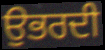
ਉਭਰਦੀ